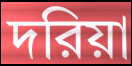
দরিয়া